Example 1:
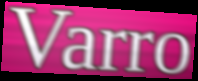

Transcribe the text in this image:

Varro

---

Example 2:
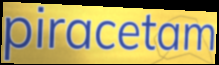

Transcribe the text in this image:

piracetam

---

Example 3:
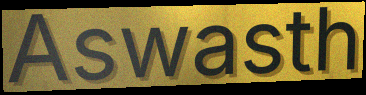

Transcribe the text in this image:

Aswasth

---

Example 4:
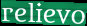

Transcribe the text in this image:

relievo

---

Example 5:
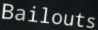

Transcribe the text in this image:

Bailouts